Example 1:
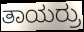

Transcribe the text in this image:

ತಾಯರ್ರು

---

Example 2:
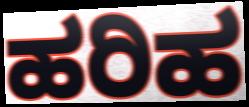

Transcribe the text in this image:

ಹರಿಹ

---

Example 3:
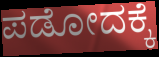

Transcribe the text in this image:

ಪಡೋದಕ್ಕೆ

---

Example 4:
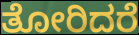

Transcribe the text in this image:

ತೋರಿದರೆ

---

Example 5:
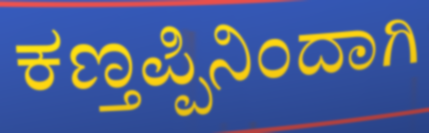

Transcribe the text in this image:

ಕಣ್ತಪ್ಪಿನಿಂದಾಗಿ